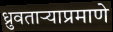
ध्रुवताऱ्याप्रमाणे